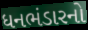
ધનભંડારનો